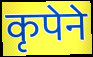
कृपेने